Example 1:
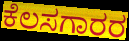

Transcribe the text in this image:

ಕೆಲಸಗಾರರ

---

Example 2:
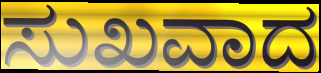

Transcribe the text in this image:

ಸುಖವಾದ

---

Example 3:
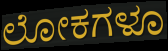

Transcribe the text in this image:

ಲೋಕಗಳೂ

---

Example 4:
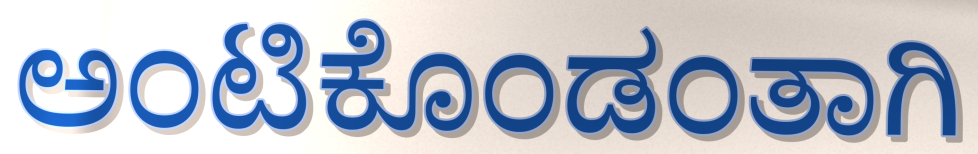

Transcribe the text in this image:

ಅಂಟಿಕೊಂಡಂತಾಗಿ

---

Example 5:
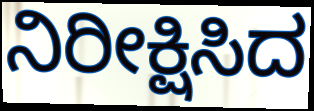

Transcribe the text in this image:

ನಿರೀಕ್ಷಿಸಿದ